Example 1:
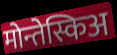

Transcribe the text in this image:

मोन्तेस्किअ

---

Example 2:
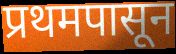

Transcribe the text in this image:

प्रथमपासून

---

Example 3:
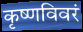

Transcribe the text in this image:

कृष्णविवरं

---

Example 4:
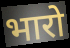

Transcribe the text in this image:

भारो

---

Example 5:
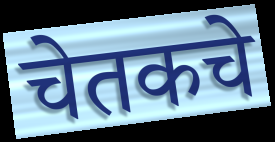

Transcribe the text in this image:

चेतकचे